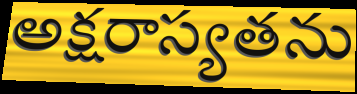
అక్షరాస్యతను